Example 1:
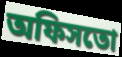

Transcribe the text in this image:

অফিসতো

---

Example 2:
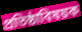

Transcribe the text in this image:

প্রতিষ্ঠাবিষয়ক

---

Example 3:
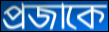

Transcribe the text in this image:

প্রজাকে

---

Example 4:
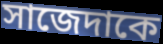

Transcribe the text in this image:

সাজেদাকে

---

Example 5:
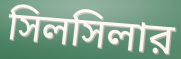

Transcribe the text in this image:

সিলসিলার